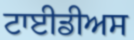
ਟਾਈਡੀਅਸ